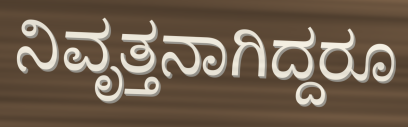
ನಿವೃತ್ತನಾಗಿದ್ದರೂ